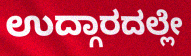
ಉದ್ಗಾರದಲ್ಲೇ